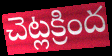
చెట్లక్రింద